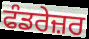
ਫੰਡਰੇਜ਼ਰ